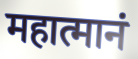
महात्मानं